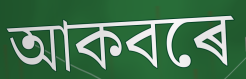
আকবৰে